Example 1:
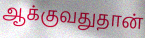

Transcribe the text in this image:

ஆக்குவதுதான்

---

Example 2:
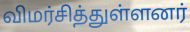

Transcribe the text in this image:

விமர்சித்துள்ளனர்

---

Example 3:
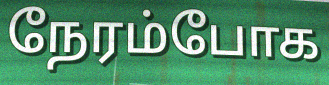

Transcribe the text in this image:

நேரம்போக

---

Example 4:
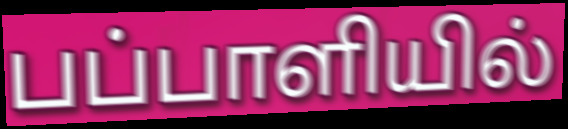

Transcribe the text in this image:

பப்பாளியில்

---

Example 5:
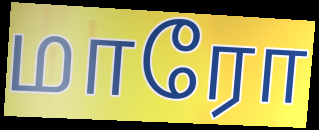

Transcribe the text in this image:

மாரோ